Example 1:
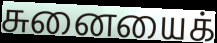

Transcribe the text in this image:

சுனையைக்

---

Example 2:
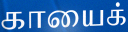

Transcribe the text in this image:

காயைக்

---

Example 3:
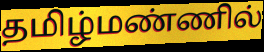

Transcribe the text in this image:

தமிழ்மண்ணில்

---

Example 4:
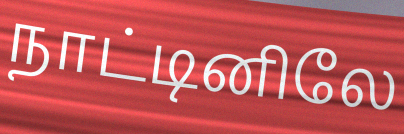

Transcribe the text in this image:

நாட்டினிலே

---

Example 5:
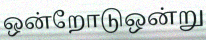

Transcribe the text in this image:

ஒன்றோடுஒன்று